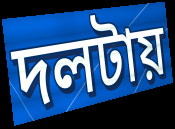
দলটায়